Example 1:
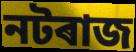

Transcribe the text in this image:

নটৰাজ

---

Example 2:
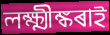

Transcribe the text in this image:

লক্ষ্মীঙ্কৰাই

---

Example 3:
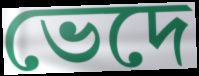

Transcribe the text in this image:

ভেদে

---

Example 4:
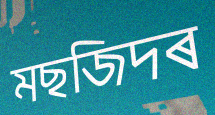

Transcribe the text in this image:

মছজিদৰ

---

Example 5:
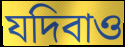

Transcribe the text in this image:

যদিবাও